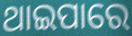
ଥାଇପାରେ